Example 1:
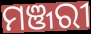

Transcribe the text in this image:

ମଞ୍ଜରୀ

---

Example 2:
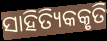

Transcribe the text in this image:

ସାହିତ୍ୟିକକୃତି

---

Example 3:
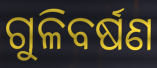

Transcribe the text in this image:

ଗୁଳିବର୍ଷଣ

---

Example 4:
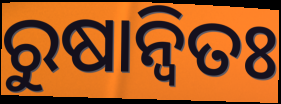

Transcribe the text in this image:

ରୁଷାନ୍ଵିତଃ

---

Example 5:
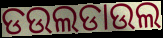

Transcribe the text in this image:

ଡଉଲଡାଉଲ